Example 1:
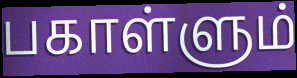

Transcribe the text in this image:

பகாள்ளும்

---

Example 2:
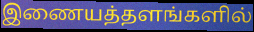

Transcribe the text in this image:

இணையத்தளங்களில்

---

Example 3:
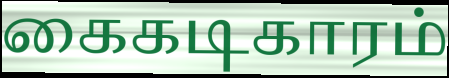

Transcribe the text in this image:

கைகடிகாரம்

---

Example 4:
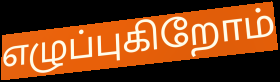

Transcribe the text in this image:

எழுப்புகிறோம்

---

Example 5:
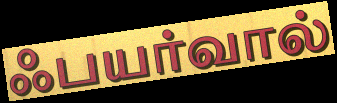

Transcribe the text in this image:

ஃபயர்வால்